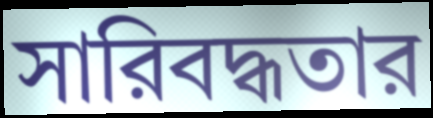
সারিবদ্ধতার